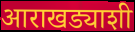
आराखड्याशी